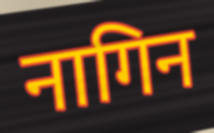
नागिन